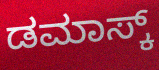
ಡಮಾಸ್ಕ್